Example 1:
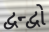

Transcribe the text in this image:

દ્વન્દ્વો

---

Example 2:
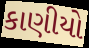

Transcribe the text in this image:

કાણીયો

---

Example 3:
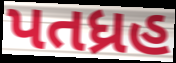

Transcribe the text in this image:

પતધ્રહ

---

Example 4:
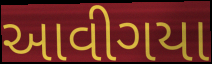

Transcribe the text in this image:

આવીગયા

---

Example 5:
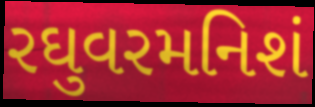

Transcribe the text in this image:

રઘુવરમનિશં